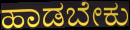
ಹಾಡಬೇಕು